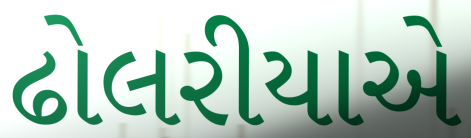
ઢોલરીયાએ